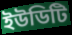
ইউডিটি